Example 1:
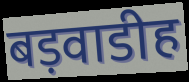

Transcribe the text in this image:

बड़वाडीह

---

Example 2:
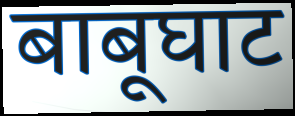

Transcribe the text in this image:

बाबूघाट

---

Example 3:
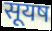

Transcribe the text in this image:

सूयष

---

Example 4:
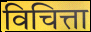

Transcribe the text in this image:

विचित्ता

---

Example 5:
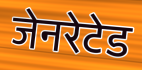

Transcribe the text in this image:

जेनरेटेड